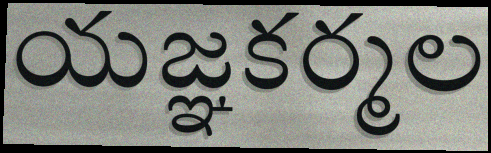
యజ్ఞకర్మల